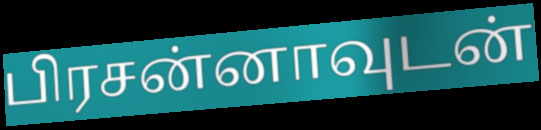
பிரசன்னாவுடன்